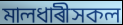
মালধাৰীসকল